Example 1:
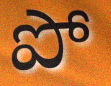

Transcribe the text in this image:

పో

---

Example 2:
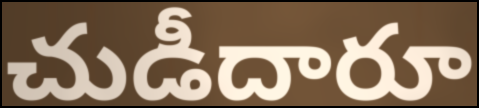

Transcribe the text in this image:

చుడీదారూ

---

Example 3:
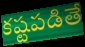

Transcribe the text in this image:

కష్టపడితే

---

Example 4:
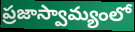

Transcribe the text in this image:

ప్రజాస్వామ్యంలో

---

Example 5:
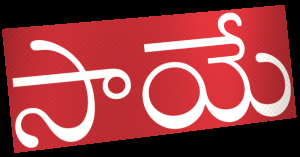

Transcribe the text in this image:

సాయే